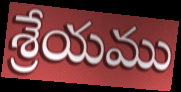
శ్రేయము